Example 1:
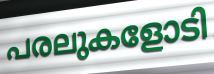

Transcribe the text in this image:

പരലുകളോടി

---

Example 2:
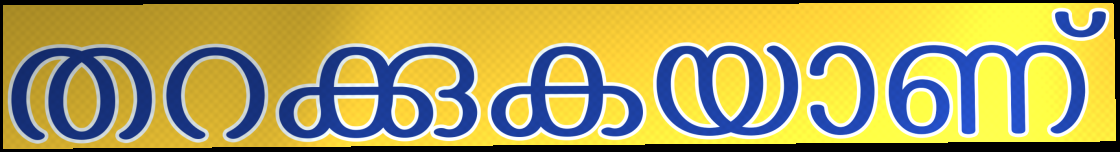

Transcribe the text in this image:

തറക്കുകയാണ്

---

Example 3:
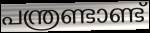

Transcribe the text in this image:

പന്ത്രണ്ടാണ്ട്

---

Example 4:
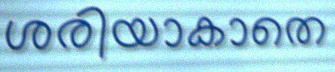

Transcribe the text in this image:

ശരിയാകാതെ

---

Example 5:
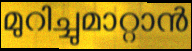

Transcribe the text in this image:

മുറിച്ചുമാറ്റാൻ